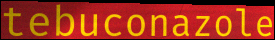
tebuconazole